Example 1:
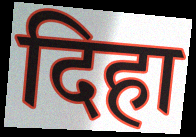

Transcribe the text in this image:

दिहा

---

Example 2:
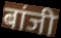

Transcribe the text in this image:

बांजी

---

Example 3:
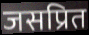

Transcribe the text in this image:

जसप्रित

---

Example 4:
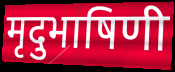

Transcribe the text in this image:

मृदुभाषिणी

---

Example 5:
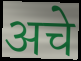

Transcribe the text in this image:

अचे